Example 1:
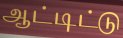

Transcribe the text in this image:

ஆட்டிட்டு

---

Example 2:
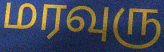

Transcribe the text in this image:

மரவுரு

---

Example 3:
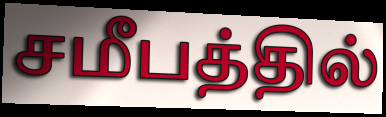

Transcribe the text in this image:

சமீபத்தில்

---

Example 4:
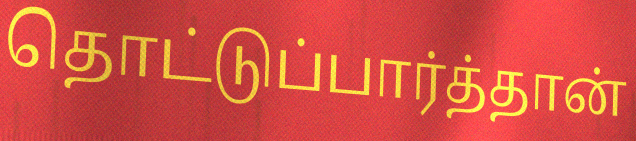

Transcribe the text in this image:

தொட்டுப்பார்த்தான்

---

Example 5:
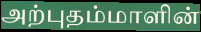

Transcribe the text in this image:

அற்புதம்மாளின்